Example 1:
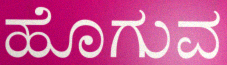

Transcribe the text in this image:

ಹೊಗುವ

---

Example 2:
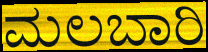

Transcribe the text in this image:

ಮಲಬಾರಿ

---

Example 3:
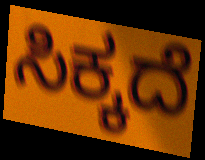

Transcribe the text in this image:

ಸಿಕ್ಕದೆ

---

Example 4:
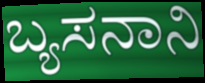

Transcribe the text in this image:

ಬ್ಯಸನಾನಿ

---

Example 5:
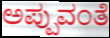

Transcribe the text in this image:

ಅಪ್ಪುವಂತೆ